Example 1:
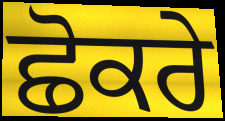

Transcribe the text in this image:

ਛੋਕਰੇ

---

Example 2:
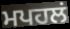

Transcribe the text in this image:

ਮਪਹਲਂ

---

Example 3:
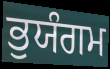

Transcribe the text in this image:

ਭੁਯੰਗਮ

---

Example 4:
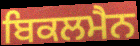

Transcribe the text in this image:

ਬਿਕਲਮੈਨ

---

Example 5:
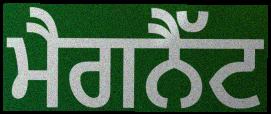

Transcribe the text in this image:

ਮੈਗਨੈੱਟ